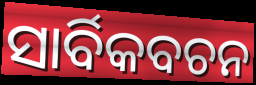
ସାର୍ବିକବଚନ